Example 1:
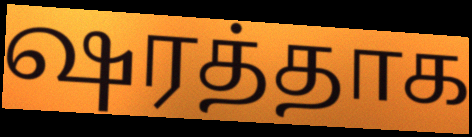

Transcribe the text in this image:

ஷரத்தாக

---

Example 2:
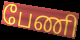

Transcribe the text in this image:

பேணி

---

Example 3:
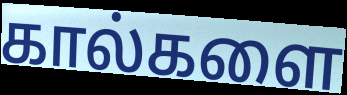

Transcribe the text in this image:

கால்களை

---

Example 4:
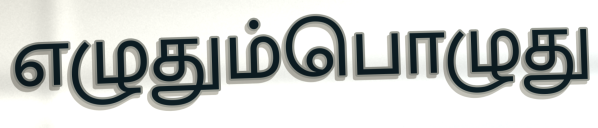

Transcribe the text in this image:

எழுதும்பொழுது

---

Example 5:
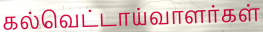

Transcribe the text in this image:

கல்வெட்டாய்வாளர்கள்